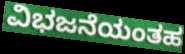
ವಿಭಜನೆಯಂತಹ